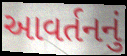
આવર્તનનું